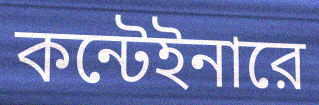
কন্টেইনারে